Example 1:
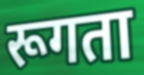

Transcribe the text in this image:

रूगता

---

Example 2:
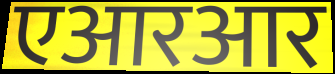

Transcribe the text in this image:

एआरआर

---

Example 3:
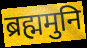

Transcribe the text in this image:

ब्रह्ममुनि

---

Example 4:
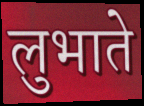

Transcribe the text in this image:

लुभाते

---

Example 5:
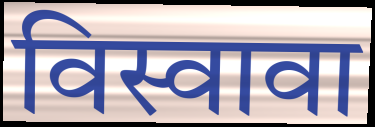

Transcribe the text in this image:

विस्वावा